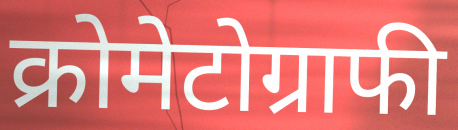
क्रोमेटोग्राफी